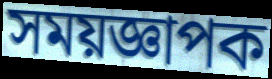
সময়জ্ঞাপক